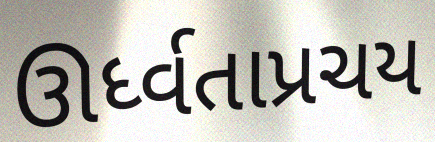
ઊર્ધ્વતાપ્રચય